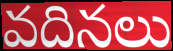
వదినలు